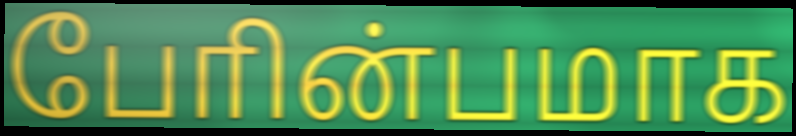
பேரின்பமாக